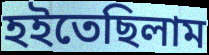
হইতেছিলাম